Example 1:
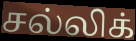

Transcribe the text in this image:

சல்லிக்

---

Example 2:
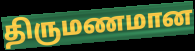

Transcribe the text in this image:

திருமணமான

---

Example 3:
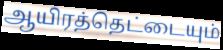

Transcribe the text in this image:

ஆயிரத்தெட்டையும்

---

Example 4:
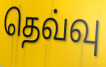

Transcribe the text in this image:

தெவ்வு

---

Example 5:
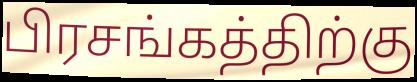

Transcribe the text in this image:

பிரசங்கத்திற்கு